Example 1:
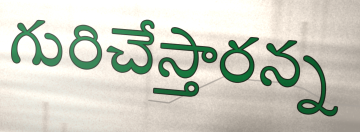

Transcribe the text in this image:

గురిచేస్తారన్న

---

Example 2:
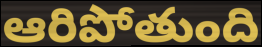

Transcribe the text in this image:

ఆరిపోతుంది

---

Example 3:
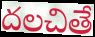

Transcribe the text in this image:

దలచితే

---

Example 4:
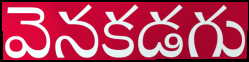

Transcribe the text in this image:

వెనకడగు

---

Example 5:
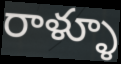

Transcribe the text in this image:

రాళ్ళూ